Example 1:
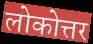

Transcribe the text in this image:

लोकोत्तर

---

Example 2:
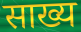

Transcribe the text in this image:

साख्य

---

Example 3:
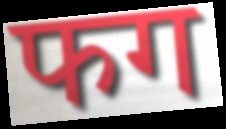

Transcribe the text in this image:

फग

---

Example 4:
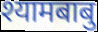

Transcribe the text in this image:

श्यामबाबु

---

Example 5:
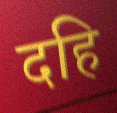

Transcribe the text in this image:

दहि